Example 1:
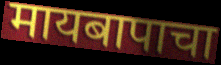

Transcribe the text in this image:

मायबापाचा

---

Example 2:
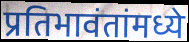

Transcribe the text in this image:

प्रतिभावंतांमध्ये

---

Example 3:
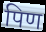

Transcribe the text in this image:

पिण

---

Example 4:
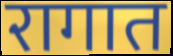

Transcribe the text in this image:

रागात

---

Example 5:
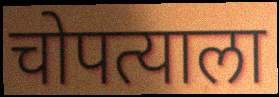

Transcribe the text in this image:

चोपत्याला